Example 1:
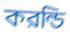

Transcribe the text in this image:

করন্ডি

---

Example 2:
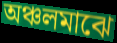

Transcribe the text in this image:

অঞ্চলমাঝে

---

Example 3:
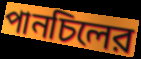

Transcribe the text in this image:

পানচিলের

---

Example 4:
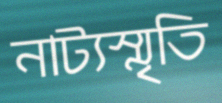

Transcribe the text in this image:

নাট্যস্মৃতি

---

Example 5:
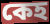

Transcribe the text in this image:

কেহ